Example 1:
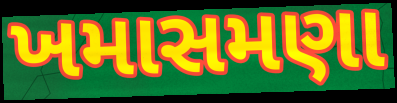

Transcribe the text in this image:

ખમાસમણા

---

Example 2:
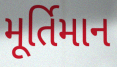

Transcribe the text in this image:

મૂર્તિમાન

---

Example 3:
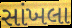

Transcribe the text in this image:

સાંખલા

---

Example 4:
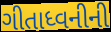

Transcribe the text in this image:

ગીતાધ્વનીની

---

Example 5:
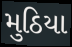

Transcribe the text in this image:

મુઠિયા